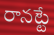
రానట్టే